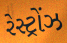
રેસ્ટ્રોંઝ